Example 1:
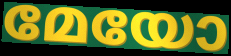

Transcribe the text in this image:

മേയോ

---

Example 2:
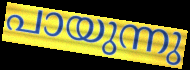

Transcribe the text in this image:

പായുന്നു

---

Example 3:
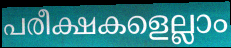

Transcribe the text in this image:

പരീക്ഷകളെല്ലാം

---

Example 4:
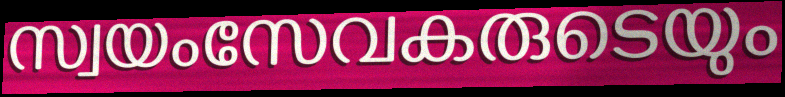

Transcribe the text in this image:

സ്വയംസേവകരുടെയും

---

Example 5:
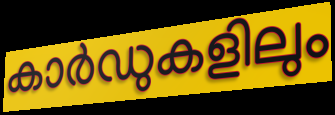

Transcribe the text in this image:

കാർഡുകളിലും